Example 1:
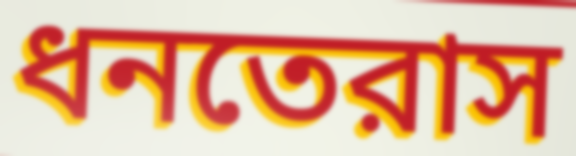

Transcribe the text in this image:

ধনতেরাস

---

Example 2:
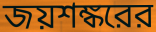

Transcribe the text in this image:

জয়শঙ্করের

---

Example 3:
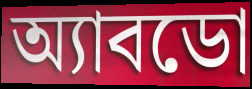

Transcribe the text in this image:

অ্যাবডো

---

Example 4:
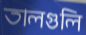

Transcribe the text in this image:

তালগুলি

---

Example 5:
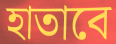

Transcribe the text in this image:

হাতাবে